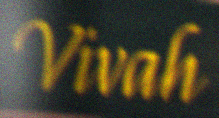
Vivah